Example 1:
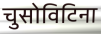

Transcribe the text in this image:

चुसोविटिना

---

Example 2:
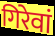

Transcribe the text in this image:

गिरेवां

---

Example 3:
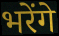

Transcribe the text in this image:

भरेंगे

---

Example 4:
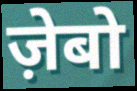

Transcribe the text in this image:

ज़ेबो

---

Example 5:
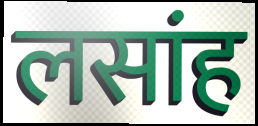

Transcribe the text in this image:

लसांह